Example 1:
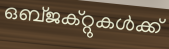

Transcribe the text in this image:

ഒബ്ജക്റ്റുകൾക്ക്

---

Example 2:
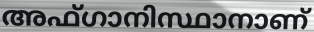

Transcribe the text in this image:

അഫ്ഗാനിസ്ഥാനാണ്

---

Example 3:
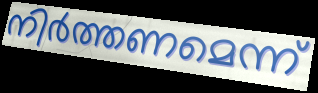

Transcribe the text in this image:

നിർത്തണമെന്ന്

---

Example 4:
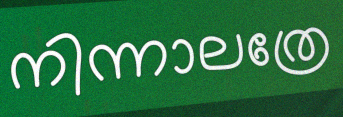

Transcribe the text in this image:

നിന്നാലത്രേ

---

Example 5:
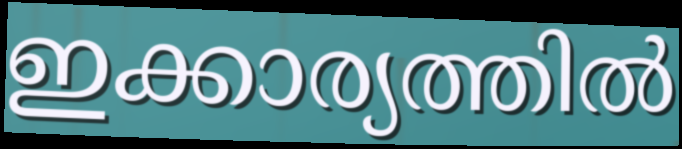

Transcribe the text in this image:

ഇക്കാര്യത്തിൽ